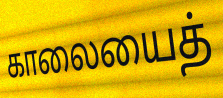
காலையைத்